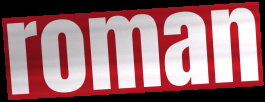
roman